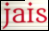
jais